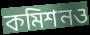
কমিশনও